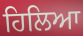
ਹਿਲਿਆ